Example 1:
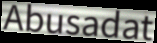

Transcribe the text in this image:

Abusadat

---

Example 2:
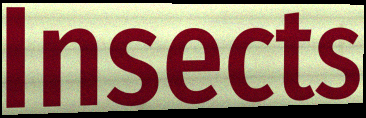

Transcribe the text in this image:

Insects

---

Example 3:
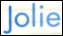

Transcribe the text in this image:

Jolie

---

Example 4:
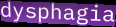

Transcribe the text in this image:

dysphagia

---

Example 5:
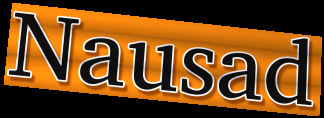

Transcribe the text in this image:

Nausad